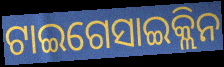
ଟାଇଗେସାଇକ୍ଲିନ